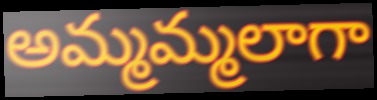
అమ్మమ్మలాగా